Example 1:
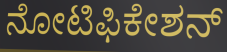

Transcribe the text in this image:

ನೋಟಿಫಿಕೇಶನ್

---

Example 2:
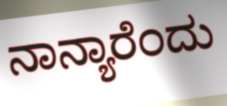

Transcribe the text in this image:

ನಾನ್ಯಾರೆಂದು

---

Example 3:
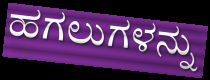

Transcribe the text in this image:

ಹಗಲುಗಳನ್ನು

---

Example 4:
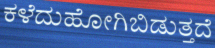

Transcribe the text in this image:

ಕಳೆದುಹೋಗಿಬಿಡುತ್ತದೆ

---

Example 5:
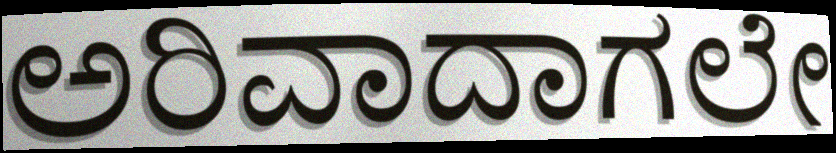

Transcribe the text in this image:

ಅರಿವಾದಾಗಲೇ